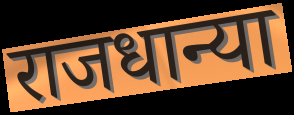
राजधान्या